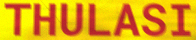
THULASI